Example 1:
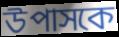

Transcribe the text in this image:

উপাসকে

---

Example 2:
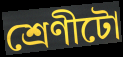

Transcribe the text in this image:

শ্ৰেণীটো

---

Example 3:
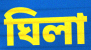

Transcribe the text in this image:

ঘিলা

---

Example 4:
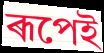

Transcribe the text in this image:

ৰূপেই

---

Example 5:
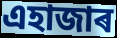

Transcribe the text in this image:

এহাজাৰ